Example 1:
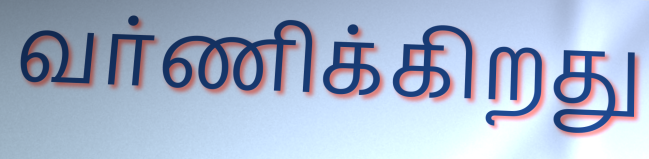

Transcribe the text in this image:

வர்ணிக்கிறது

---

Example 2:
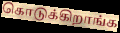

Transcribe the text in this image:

கொடுக்கிறாங்க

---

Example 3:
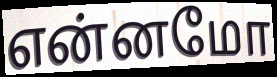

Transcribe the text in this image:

என்னமோ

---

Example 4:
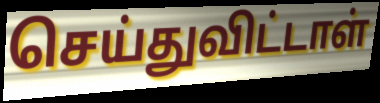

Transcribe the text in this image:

செய்துவிட்டாள்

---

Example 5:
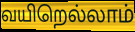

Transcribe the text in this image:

வயிறெல்லாம்